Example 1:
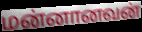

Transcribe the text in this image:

மன்னானவன்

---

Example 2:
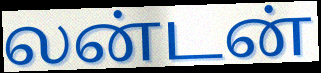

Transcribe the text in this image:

லன்டன்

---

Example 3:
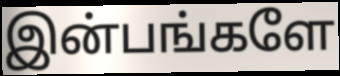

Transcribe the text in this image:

இன்பங்களே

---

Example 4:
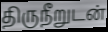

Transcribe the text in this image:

திருநீறுடன்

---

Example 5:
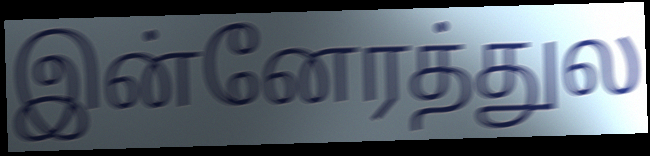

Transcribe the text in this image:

இன்னேரத்துல